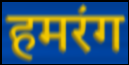
हमरंग